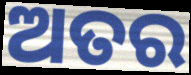
ଅତର